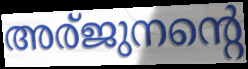
അര്ജുനന്റെ